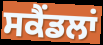
ਸਕੈਂਡਲਾਂ